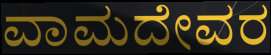
ವಾಮದೇವರ